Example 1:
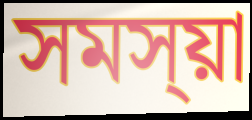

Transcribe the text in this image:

সমস্য়া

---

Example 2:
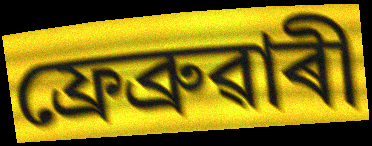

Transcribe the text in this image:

ফ্ৰেব্ৰুৱাৰী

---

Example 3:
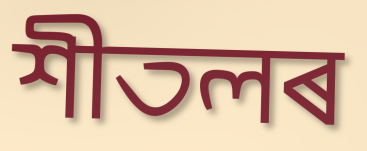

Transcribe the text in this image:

শীতলৰ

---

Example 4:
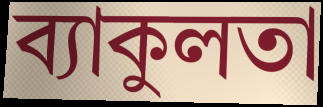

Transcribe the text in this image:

ব্যাকুলতা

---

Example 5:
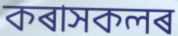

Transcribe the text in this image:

কৰাসকলৰ